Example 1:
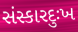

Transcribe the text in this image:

સંસ્કારદુઃખ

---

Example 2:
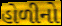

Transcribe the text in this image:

હોળીનો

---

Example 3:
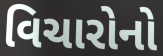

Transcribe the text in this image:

વિચારોનો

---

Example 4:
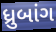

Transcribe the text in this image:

ધ્રુબાંગ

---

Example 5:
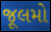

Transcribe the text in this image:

જૂલમો